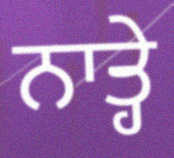
ਨਾਤ੍ਹੇ